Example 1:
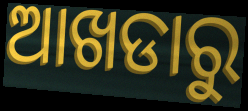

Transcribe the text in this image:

ଆଖଡାରୁ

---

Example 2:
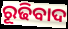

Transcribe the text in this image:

ରୂଢିବାଦ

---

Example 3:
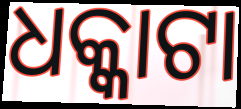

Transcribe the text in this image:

ଧକ୍କାଟା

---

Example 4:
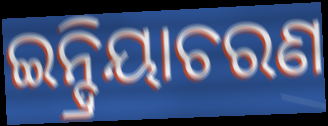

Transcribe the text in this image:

ଇନ୍ଦ୍ରିୟାଚରଣ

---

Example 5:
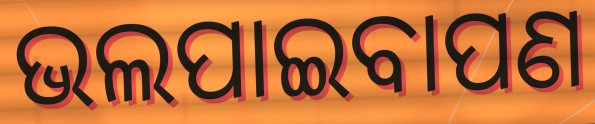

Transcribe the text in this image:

ଭଲପାଇବାପଣ